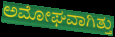
ಅಮೋಘವಾಗಿತ್ತು